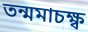
তন্মমাচক্ষ্ব